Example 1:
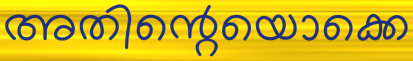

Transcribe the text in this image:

അതിന്റെയൊക്കെ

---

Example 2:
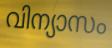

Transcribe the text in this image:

വിന്യാസം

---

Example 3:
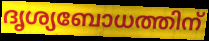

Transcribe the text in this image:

ദൃശ്യബോധത്തിന്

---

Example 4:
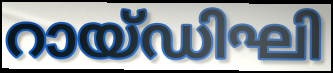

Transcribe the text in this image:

റായ്ഡിഘി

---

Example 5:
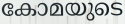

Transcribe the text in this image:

കോമയുടെ